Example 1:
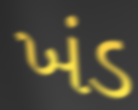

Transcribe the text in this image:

ખંડ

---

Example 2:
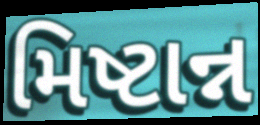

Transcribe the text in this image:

મિષ્ટાન્ન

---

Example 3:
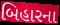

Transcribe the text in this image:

બિહારના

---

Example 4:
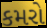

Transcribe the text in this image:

કમરો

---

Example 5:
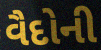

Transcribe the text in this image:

વૈદોની